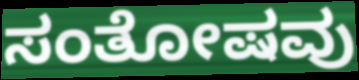
ಸಂತೋಷವು